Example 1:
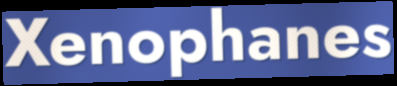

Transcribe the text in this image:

Xenophanes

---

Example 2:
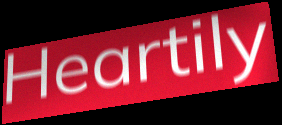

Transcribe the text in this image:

Heartily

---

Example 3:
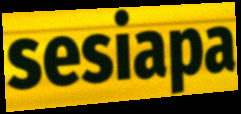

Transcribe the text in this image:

sesiapa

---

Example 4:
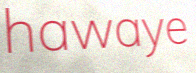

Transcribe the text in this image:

hawaye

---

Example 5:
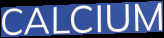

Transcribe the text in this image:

CALCIUM